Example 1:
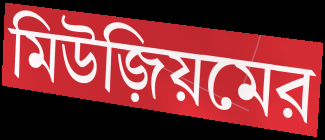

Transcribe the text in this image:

মিউজ়িয়মের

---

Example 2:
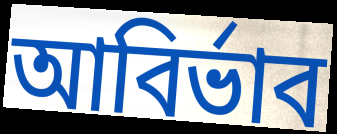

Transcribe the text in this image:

আবির্ভাব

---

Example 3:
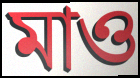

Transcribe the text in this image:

মাও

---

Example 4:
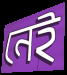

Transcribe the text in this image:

নেই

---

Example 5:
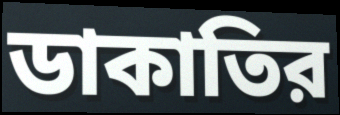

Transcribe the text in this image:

ডাকাতির